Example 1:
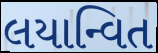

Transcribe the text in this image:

લયાન્વિત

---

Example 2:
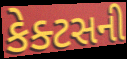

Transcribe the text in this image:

કેક્ટસની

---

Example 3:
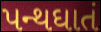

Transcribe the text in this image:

પન્થઘાતં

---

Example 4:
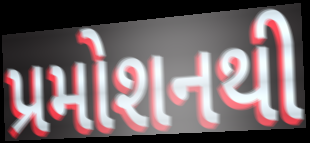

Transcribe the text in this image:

પ્રમોશનથી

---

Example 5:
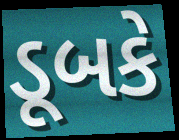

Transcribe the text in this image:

ડૂબકે